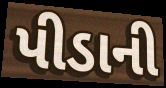
પીડાની